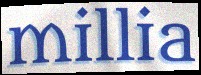
millia